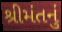
શ્રીમંતનું